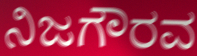
ನಿಜಗೌರವ